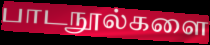
பாடநூல்களை